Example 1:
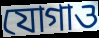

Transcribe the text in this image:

যোগাও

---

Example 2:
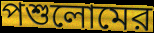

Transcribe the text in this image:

পশুলোমের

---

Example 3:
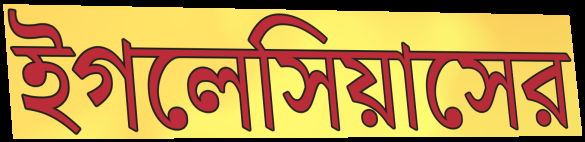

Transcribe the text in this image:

ইগলেসিয়াসের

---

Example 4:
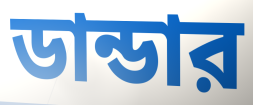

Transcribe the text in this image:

ডান্ডার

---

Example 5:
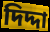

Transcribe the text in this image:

দিদ্দা